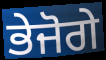
ਭੇਜੋਗੇ